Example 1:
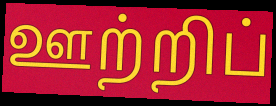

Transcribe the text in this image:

ஊற்றிப்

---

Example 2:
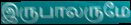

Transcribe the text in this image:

இருபாலருமே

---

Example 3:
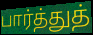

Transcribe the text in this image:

பார்த்துத்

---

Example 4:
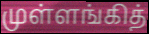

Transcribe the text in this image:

முள்ளங்கித்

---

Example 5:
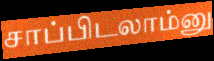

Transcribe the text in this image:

சாப்பிடலாம்னு